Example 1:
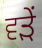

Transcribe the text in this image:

ਵੜੇਂ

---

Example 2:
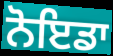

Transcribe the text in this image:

ਨੋਇਡਾ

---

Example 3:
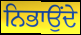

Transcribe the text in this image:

ਨਿਭਾਉਂਦੇ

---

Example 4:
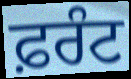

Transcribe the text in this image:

ਫ਼ਰੰਟ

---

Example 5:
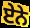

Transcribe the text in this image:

ਏੇਨੇ